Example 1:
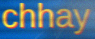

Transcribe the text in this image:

chhay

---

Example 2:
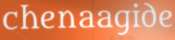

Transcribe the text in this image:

chenaagide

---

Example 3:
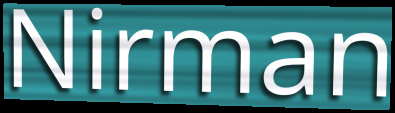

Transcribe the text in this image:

Nirman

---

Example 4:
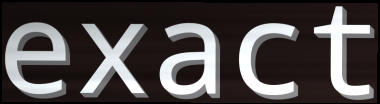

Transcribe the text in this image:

exact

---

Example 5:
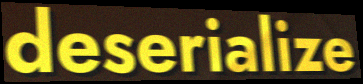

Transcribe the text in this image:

deserialize